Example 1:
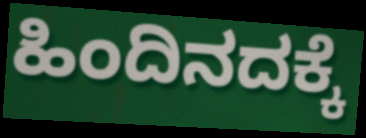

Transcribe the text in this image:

ಹಿಂದಿನದಕ್ಕೆ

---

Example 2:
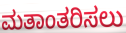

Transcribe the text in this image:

ಮತಾಂತರಿಸಲು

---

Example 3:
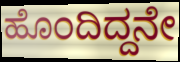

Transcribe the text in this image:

ಹೊಂದಿದ್ದನೇ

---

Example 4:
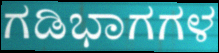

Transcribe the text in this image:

ಗಡಿಭಾಗಗಳ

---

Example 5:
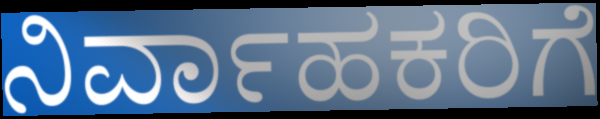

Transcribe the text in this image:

ನಿರ್ವಾಹಕರಿಗೆ